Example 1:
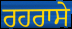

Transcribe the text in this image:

ਰਹਰਾਸੇ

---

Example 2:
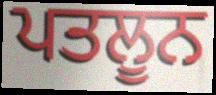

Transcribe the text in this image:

ਪਤਲੂਨ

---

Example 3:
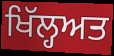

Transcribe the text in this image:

ਖਿੱਲ੍ਹਅਤ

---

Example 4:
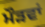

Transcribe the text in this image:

ਮੌੜਵਾਂ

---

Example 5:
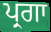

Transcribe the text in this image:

ਪ੍ਰਗਾ